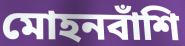
মোহনবাঁশি